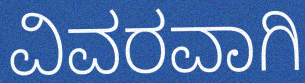
ವಿವರವಾಗಿ